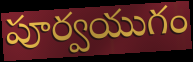
పూర్వయుగం